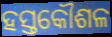
ହସ୍ତକୌଶଳ